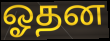
ஓதன